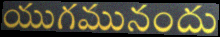
యుగమునందు